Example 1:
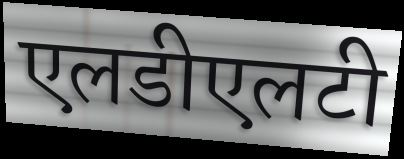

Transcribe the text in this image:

एलडीएलटी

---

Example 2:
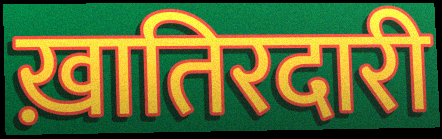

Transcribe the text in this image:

ख़ातिरदारी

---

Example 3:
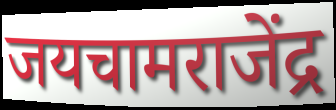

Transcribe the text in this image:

जयचामराजेंद्र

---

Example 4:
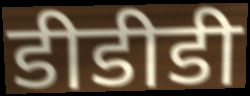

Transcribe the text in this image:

डीडीडी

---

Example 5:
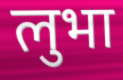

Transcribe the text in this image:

लुभा